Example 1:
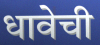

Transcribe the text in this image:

धावेची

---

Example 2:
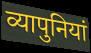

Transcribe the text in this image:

व्यापुनियां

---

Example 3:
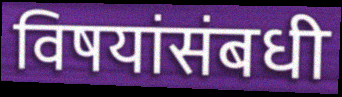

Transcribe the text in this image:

विषयांसंबधी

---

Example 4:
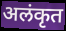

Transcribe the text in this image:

अलंकृत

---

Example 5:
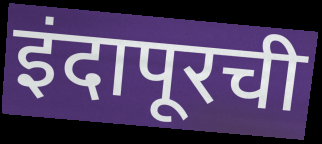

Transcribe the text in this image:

इंदापूरची